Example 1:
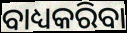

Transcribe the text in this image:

ବାଧ୍ୟକରିବା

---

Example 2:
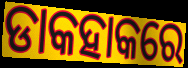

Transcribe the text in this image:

ଡାକହାକରେ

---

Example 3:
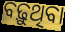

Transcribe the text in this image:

ବଢ଼ୁଥିବା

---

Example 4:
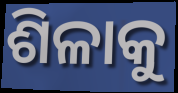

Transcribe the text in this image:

ଶିଳାକୁ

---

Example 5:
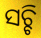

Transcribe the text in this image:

ସଚ୍ଚି